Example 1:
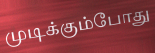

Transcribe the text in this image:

முடிக்கும்போது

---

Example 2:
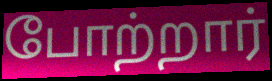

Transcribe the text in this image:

போற்றார்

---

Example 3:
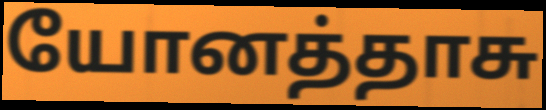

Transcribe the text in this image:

யோனத்தாசு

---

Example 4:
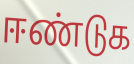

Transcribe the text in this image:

ஈண்டுக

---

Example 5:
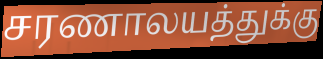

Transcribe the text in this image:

சரணாலயத்துக்கு